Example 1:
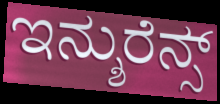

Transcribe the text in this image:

ಇನ್ಶುರೆನ್ಸ್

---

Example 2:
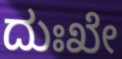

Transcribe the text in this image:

ದುಃಖೇ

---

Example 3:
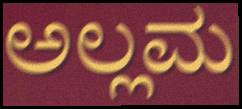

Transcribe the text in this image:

ಅಲ್ಲಮ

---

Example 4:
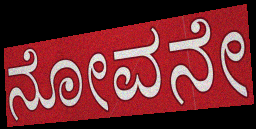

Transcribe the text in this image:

ನೋವನೇ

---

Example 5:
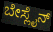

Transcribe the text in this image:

ಬೇಸ್ಲೈನ್